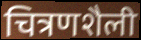
चित्रणशैली